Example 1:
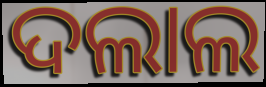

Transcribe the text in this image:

ଦଲାଲ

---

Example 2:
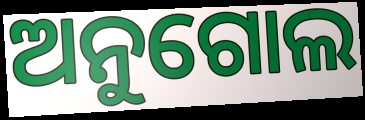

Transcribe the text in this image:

ଅନୁଗୋଲ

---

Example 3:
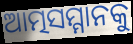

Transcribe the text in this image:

ଆତ୍ମସମ୍ମାନକୁ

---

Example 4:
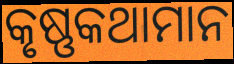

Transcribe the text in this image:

କୃଷ୍ଣକଥାମାନ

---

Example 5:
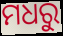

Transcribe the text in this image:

ମଧରୁ